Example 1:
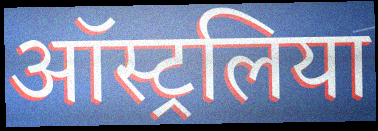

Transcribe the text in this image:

ऑस्ट्रलिया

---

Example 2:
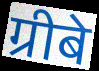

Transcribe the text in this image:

ग्रीबे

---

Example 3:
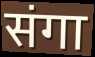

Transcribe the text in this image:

संगा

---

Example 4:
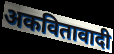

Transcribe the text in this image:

अकवितावादी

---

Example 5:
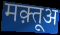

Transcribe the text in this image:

मक़्तूअ